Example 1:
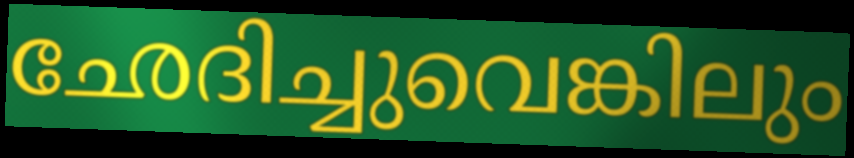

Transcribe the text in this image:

ഛേദിച്ചുവെങ്കിലും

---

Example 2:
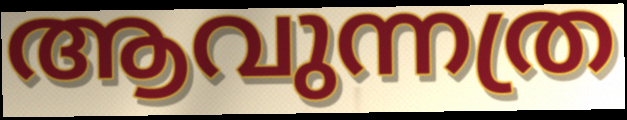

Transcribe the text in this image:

ആവുന്നത്ര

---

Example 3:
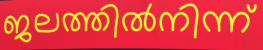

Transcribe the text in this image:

ജലത്തിൽനിന്ന്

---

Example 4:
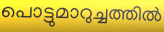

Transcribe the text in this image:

പൊട്ടുമാറുച്ചത്തിൽ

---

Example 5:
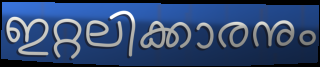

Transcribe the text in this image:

ഇറ്റലിക്കാരനും